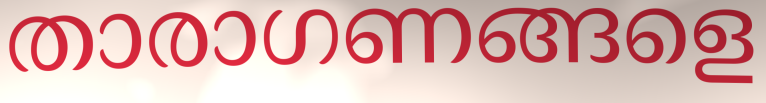
താരാഗണങ്ങളെ